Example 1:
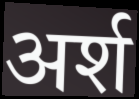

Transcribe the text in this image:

अर्श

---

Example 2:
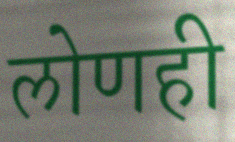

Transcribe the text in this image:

लोणही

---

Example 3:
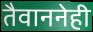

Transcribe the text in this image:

तैवाननेही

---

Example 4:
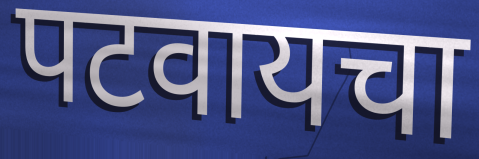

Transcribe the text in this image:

पटवायचा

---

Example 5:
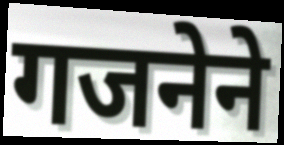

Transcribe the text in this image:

गजनेने